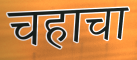
चहाचा